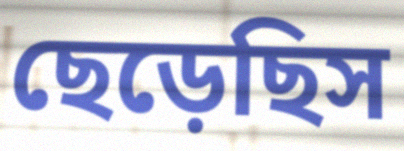
ছেড়েছিস